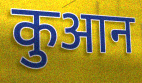
कुआन